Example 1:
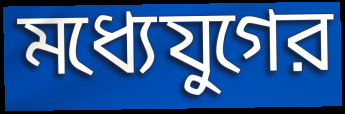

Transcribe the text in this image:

মধ্যেযুগের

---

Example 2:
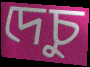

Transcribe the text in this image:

দেচু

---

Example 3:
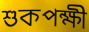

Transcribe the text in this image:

শুকপক্ষী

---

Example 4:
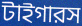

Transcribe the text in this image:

টাইগারস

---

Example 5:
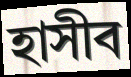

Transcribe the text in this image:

হাসীব